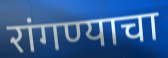
रांगण्याचा